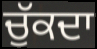
ਚੁੱਕਦਾ